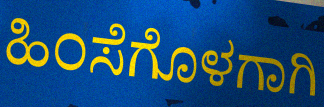
ಹಿಂಸೆಗೊಳಗಾಗಿ